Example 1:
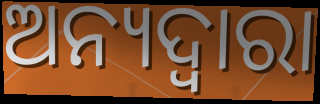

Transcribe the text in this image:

ଅନ୍ୟଦ୍ଵାରା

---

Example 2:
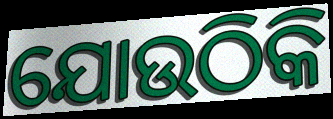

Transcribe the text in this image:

ଯୋଉଠିକି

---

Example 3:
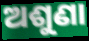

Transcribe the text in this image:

ଅଶୁଣା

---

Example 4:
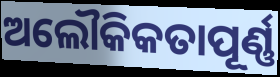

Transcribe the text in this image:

ଅଲୌକିକତାପୂର୍ଣ୍ଣ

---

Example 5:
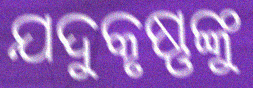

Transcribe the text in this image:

ଯଦୁକୃଷ୍ଣଙ୍କୁ